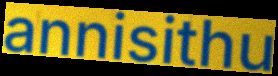
annisithu